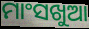
ମାଂସଖୁଆ